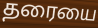
தரையை